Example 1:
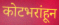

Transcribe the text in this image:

कोटभरांहून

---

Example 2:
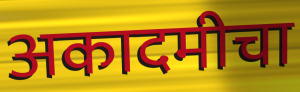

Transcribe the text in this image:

अकादमीचा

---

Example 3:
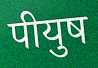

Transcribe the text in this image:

पीयुष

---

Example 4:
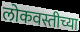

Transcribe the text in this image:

लोकवस्तीच्या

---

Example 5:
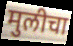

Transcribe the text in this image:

मुलीचा